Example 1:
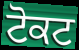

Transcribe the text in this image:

ਟੋਕਟ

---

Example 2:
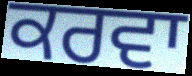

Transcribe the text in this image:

ਕਰਵਾ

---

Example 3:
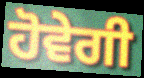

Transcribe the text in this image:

ਹੋਵੇਗੀ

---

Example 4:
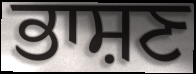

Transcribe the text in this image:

ਭਾਸ਼ਣ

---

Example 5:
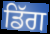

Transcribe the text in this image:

ਡਿੱਗ